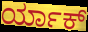
ರ್ಯಾಕ್